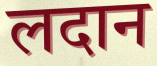
लदान